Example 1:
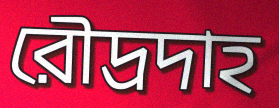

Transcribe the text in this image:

রৌদ্রদাহ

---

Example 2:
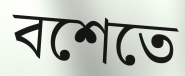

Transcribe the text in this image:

বশেতে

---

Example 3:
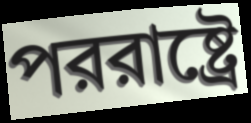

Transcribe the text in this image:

পররাষ্ট্রে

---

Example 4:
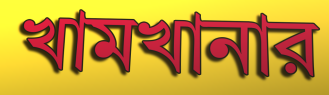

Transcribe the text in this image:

খামখানার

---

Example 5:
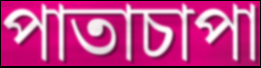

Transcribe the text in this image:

পাতাচাপা